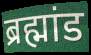
ब्रह्मांड